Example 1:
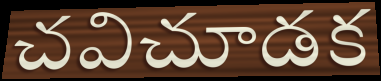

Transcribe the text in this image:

చవిచూడక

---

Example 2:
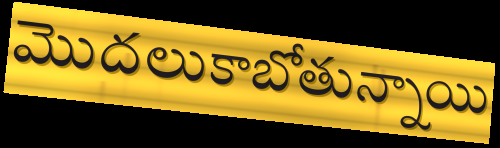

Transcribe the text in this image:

మొదలుకాబోతున్నాయి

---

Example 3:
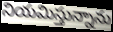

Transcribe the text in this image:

నియమిస్తున్నాను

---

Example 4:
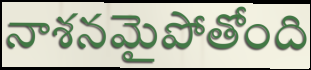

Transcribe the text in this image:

నాశనమైపోతోంది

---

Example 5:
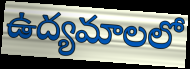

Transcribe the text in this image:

ఉద్యమాలలో